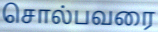
சொல்பவரை